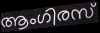
ആംഗിരസ്